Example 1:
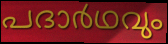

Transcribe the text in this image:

പദാർഥവും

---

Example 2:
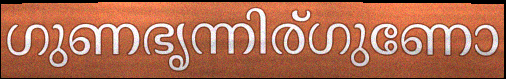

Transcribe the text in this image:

ഗുണഭൃന്നിര്ഗുണോ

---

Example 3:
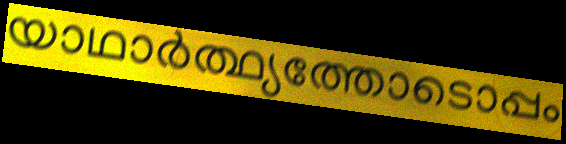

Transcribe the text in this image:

യാഥാർത്ഥ്യത്തോടൊപ്പം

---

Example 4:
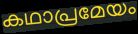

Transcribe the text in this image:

കഥാപ്രമേയം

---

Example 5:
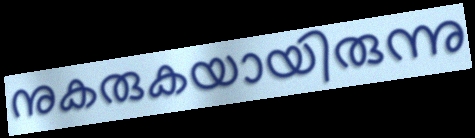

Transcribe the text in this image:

നുകരുകയായിരുന്നു